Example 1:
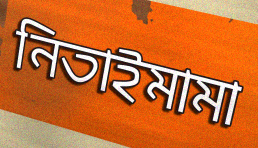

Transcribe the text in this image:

নিতাইমামা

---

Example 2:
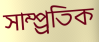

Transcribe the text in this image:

সাম্প্র্রতিক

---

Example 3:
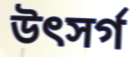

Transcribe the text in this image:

উৎসর্গ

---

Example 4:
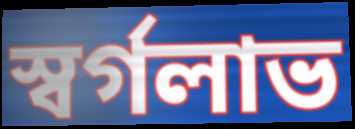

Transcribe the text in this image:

স্বর্গলাভ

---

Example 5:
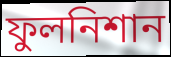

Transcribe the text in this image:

ফুলনিশান